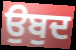
ਉਬੁਦ